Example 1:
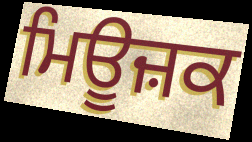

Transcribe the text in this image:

ਮਿਊਜ਼ਕ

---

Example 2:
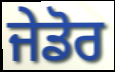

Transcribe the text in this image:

ਜੇਡੋਰ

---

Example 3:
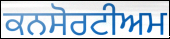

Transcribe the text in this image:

ਕਨਸੋਰਟੀਅਮ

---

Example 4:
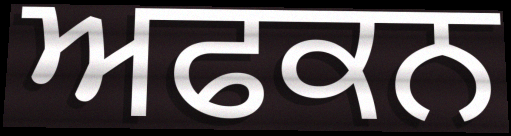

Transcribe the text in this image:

ਅਫਕਨ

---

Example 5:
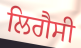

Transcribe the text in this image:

ਲਿਗੈਸੀ